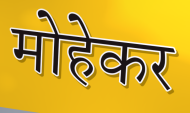
मोहेकर